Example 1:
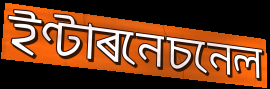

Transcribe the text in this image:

ইণ্টাৰনেচনেল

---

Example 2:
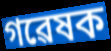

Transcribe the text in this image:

গৱেষক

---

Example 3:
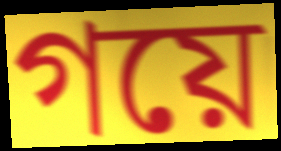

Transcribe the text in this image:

গয়ে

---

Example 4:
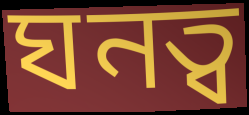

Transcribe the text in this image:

ঘনত্ব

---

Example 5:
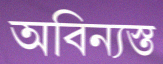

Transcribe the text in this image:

অবিন্যস্ত